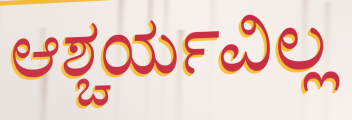
ಆಶ್ಚರ್ಯವಿಲ್ಲ